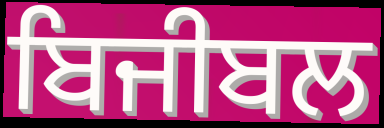
ਬਿਜੀਬਲ